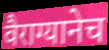
वैराग्यानेच